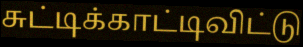
சுட்டிக்காட்டிவிட்டு